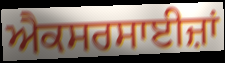
ਐਕਸਰਸਾਈਜ਼ਾਂ